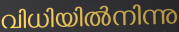
വിധിയിൽനിന്നു